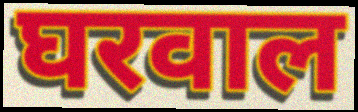
घरवाल